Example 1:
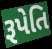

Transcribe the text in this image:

રૂપેતિ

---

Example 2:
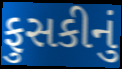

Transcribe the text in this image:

ફુસકીનું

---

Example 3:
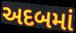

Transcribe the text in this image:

અદબમાં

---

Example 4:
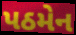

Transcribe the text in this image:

પઠમેન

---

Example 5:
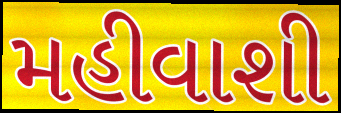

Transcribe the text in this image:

મહીવાશી